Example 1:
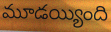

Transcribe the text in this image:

మూడయ్యింది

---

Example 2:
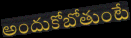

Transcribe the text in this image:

అందుకోబోతుంటే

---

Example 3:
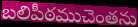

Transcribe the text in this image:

బలిపీఠముచెంతను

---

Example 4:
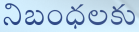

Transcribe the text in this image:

నిబంధలకు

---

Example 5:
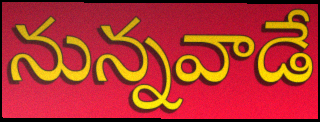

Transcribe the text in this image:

నున్నవాడే